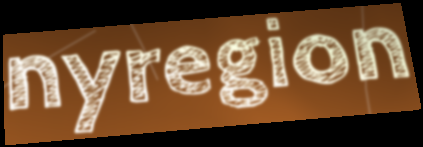
nyregion